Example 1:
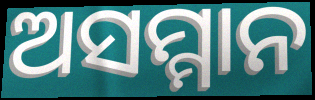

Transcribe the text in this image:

ଅସମ୍ମାନ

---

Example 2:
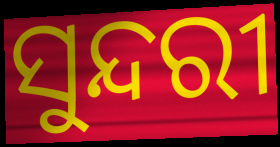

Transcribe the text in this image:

ସୁନ୍ଦରୀ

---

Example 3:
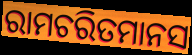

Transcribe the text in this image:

ରାମଚରିତମାନସ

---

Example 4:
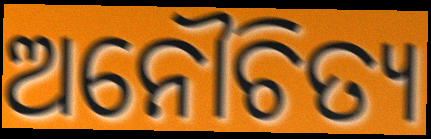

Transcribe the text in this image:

ଅନୌଚିତ୍ୟ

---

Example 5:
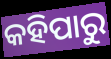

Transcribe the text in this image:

କହିପାରୁ